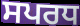
ਸਪਰਧ